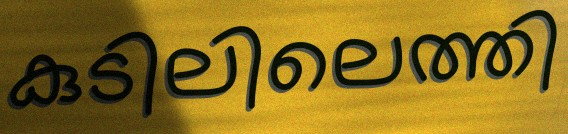
കുടിലിലെത്തി